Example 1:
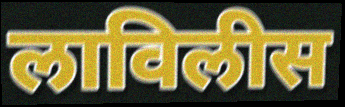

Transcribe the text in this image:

लाविलीस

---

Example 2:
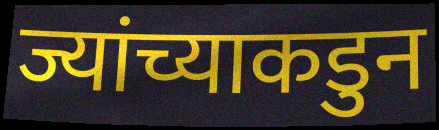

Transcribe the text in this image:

ज्यांच्याकडुन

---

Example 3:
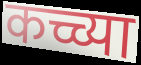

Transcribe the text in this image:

कच्च्या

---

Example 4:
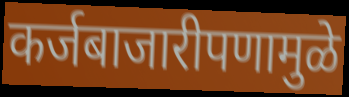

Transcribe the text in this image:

कर्जबाजारीपणामुळे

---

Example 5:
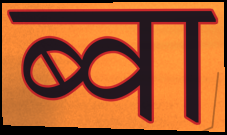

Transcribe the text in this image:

ब्वा